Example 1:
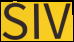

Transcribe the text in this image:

SIV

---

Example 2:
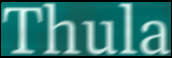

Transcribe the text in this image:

Thula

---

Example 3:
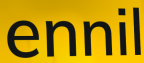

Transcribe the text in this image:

ennil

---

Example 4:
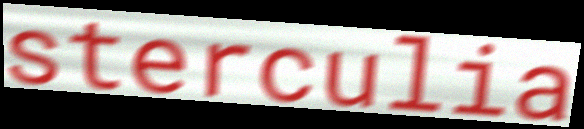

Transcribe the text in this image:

sterculia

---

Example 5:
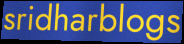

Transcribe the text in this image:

sridharblogs